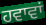
ਹਵਾਵਾਂ